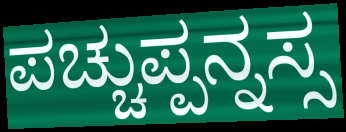
ಪಚ್ಚುಪ್ಪನ್ನಸ್ಸ